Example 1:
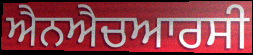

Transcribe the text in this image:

ਐਨਐਚਆਰਸੀ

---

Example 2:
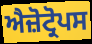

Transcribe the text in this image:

ਐਜ਼ੋਟ੍ਰੋਪਸ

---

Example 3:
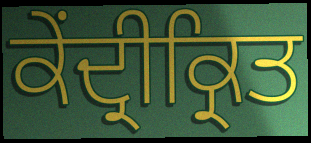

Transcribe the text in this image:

ਕੇਂਦ੍ਰੀਕ੍ਰਿਤ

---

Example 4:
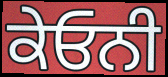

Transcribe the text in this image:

ਕੇਓਨੀ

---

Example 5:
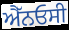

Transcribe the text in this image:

ਐੱਨਓਸੀ